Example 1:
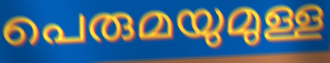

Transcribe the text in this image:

പെരുമയുമുള്ള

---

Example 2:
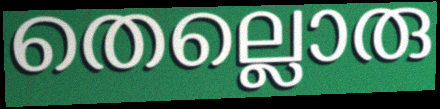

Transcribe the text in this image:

തെല്ലൊരു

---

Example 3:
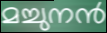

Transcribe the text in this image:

മച്ചുനൻ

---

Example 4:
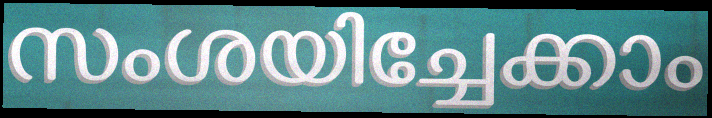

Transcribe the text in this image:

സംശയിച്ചേക്കാം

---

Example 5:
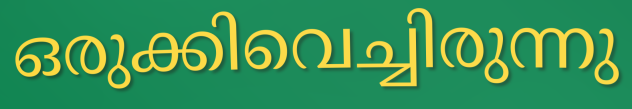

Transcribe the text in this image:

ഒരുക്കിവെച്ചിരുന്നു